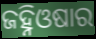
ଜହ୍ନିଓଷାର